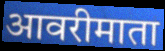
आवरीमाता